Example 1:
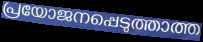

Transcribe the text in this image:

പ്രയോജനപ്പെടുത്താത്ത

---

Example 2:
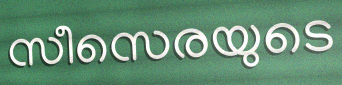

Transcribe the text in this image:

സീസെരയുടെ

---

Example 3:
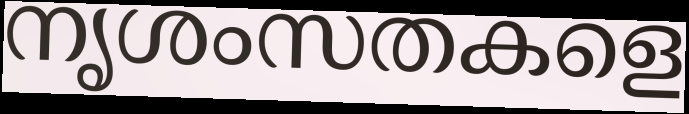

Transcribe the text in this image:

നൃശംസതകളെ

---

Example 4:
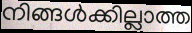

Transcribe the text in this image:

നിങ്ങൾക്കില്ലാത്ത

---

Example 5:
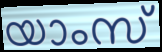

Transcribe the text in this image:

യാംസ്